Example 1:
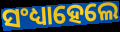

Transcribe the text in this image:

ସଂଧ୍ୟାହେଲେ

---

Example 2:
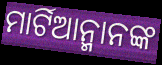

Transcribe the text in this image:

ମାର୍ଟିଆନ୍ମାନଙ୍କ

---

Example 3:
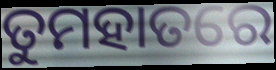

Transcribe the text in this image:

ତୁମହାତରେ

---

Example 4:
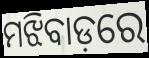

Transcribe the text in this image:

ମଝିବାଡ଼ରେ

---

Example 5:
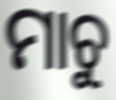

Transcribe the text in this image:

ମାଚୁ